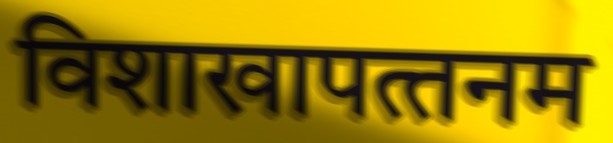
विशाखापत्‍तनम